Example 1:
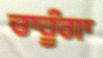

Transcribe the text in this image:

ਚਾਹੂੰਗਾ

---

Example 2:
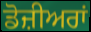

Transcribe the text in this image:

ਡੋਜ਼ੀਅਰਾਂ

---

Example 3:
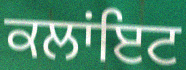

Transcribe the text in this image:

ਕਲਾਂਇਟ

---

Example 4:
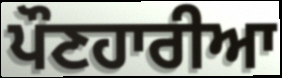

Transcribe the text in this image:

ਪੌਣਹਾਰੀਆ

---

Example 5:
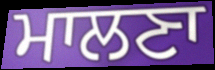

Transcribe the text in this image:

ਮਾਲਣਾ